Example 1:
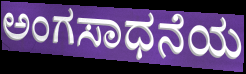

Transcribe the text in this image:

ಅಂಗಸಾಧನೆಯ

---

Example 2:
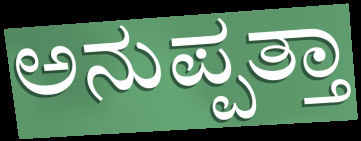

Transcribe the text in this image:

ಅನುಪ್ಪತ್ತಾ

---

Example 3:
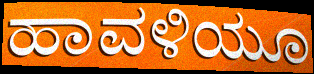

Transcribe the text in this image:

ಹಾವಳಿಯೂ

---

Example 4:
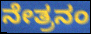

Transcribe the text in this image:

ನೇತ್ರನಂ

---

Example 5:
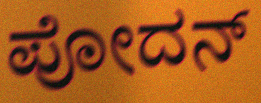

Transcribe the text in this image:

ಪೋದನ್